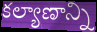
కల్యాణాన్ని